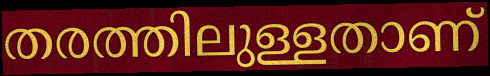
തരത്തിലുള്ളതാണ്